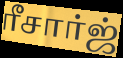
ரீசார்ஜ்